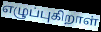
எழுப்புகிறாள்